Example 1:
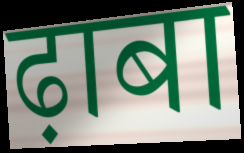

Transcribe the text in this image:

ढ़ाबा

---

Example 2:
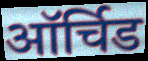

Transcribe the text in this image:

ऑर्चिड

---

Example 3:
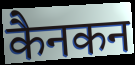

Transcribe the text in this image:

कैनकन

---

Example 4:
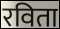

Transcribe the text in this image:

रविता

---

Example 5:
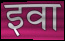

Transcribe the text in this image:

इवा